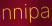
nnipa